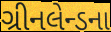
ગ્રીનલેન્ડના